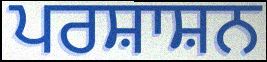
ਪਰਸ਼ਾਸ਼ਨ